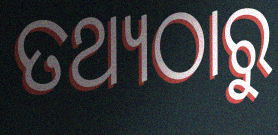
ତଥ୍ୟଠାରୁ